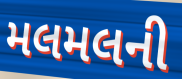
મલમલની